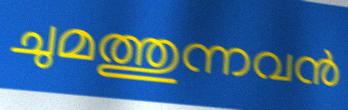
ചുമത്തുന്നവൻ